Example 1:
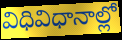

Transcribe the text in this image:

విధివిధానాల్లో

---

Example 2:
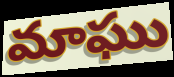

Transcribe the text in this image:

మాఘు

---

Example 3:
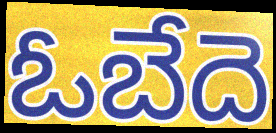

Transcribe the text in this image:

ఓబేదె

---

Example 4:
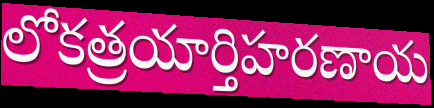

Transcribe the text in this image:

లోకత్రయార్తిహరణాయ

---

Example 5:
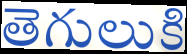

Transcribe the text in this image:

తెగులుకి